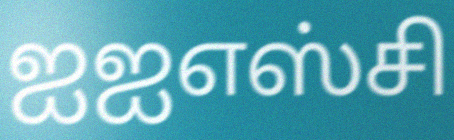
ஐஐஎஸ்சி